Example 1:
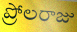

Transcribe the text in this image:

ప్రోలరాజు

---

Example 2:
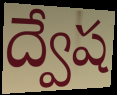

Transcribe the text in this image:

ద్వేష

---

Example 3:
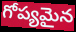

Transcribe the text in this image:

గోప్యమైన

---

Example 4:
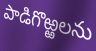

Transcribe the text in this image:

పాడిగొఱ్ఱలను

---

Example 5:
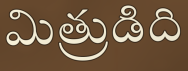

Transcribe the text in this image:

మిత్రుడిది